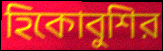
হিকোবুশির